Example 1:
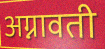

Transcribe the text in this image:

अग्नावती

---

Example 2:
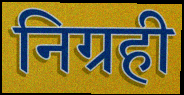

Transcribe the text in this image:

निग्रही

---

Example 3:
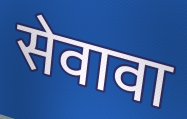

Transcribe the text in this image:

सेवावा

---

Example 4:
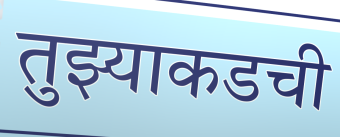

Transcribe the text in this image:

तुझ्याकडची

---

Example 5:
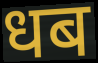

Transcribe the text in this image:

धब